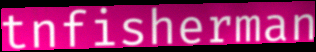
tnfisherman